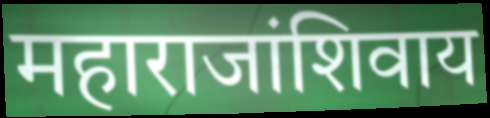
महाराजांशिवाय